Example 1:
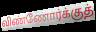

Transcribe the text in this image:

விண்ணோர்க்குத்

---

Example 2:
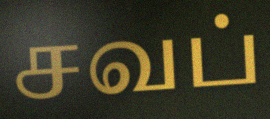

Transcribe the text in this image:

சவப்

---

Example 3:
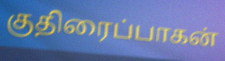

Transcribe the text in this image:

குதிரைப்பாகன்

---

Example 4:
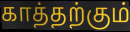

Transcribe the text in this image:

காத்தற்கும்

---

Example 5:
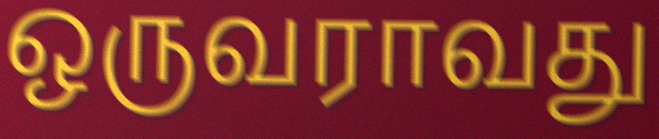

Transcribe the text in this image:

ஒருவராவது